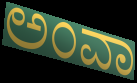
ಅಂವಾ